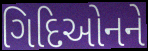
ગિદિઓનને